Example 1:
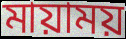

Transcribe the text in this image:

মায়াময়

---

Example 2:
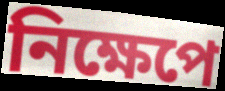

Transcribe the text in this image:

নিক্ষেপে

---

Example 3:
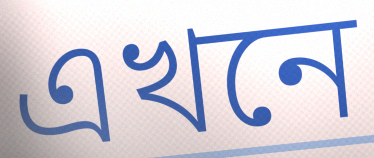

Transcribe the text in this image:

এখনে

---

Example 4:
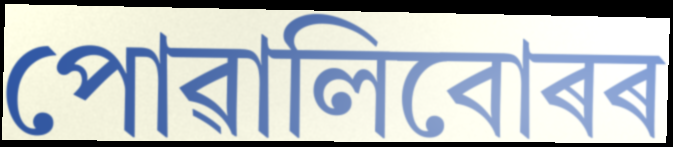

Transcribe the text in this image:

পোৱালিবোৰৰ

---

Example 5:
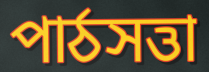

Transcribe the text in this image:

পাঠসত্তা